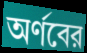
অর্ণবের